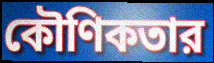
কৌণিকতার